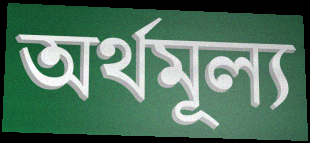
অর্থমূল্য